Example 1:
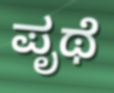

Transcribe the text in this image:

ಪೃಥೆ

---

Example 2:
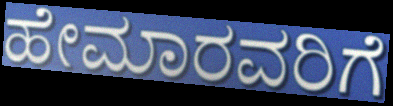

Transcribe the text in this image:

ಹೇಮಾರವರಿಗೆ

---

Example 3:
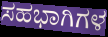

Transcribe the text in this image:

ಸಹಭಾಗಿಗಳ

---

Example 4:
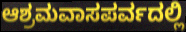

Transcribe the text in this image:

ಆಶ್ರಮವಾಸಪರ್ವದಲ್ಲಿ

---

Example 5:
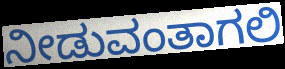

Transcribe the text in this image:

ನೀಡುವಂತಾಗಲಿ